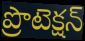
ప్రొటెక్షన్